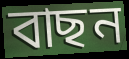
বাছন